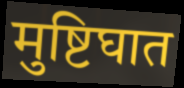
मुष्टिघात